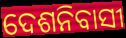
ଦେଶନିବାସୀ